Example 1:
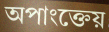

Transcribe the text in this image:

অপাংক্তেয়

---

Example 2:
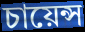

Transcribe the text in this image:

চায়েন্স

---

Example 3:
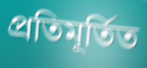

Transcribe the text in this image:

প্ৰতিমূৰ্তিত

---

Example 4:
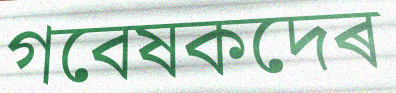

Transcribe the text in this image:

গবেষকদেৰ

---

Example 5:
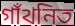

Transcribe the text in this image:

গাঁথনিত